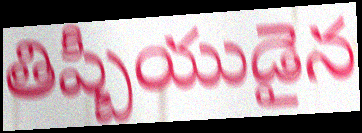
తిష్బీయుడైన